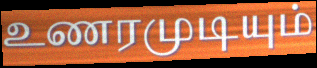
உணரமுடியும்